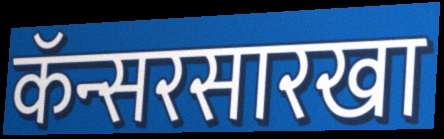
कॅन्सरसारखा